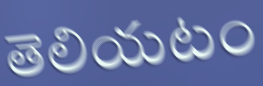
తెలియటం